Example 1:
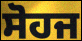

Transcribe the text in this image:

ਸੋਹਜ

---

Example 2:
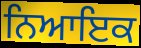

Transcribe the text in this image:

ਨਿਆਇਕ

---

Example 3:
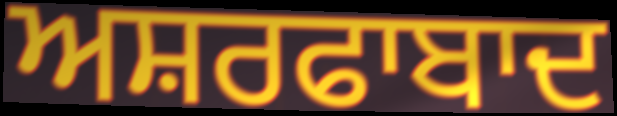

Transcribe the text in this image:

ਅਸ਼ਰਫਾਬਾਦ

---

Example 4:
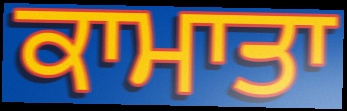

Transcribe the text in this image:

ਕਾਮਾਤਾ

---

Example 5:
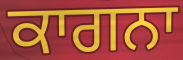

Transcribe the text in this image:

ਕਾਗਨਾ